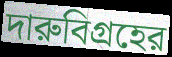
দারুবিগ্রহের